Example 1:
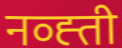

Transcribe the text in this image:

नव्ह्ती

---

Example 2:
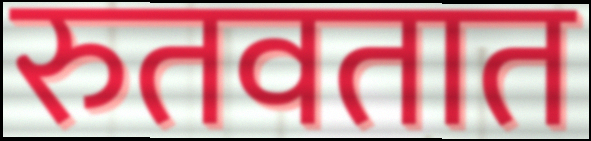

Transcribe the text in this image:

रुतवतात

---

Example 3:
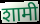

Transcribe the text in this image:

शामी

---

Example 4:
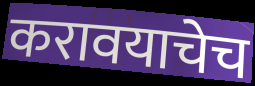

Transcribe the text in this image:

करावयाचेच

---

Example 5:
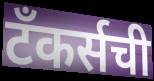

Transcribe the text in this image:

टँकर्सची